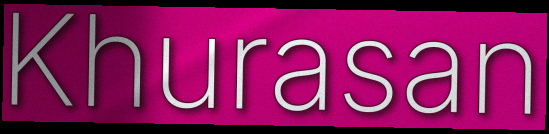
Khurasan